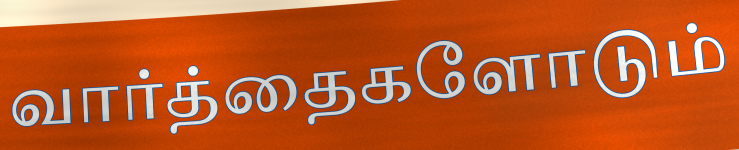
வார்த்தைகளோடும்